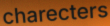
charecters